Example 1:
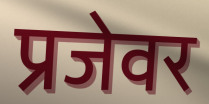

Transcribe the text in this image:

प्रजेवर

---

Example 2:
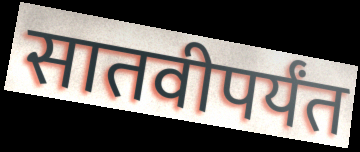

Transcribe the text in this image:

सातवीपर्यंत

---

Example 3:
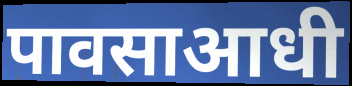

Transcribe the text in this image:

पावसाआधी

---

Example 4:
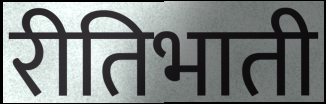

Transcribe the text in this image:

रीतिभाती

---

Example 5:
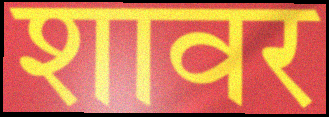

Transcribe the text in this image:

शावर